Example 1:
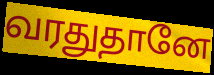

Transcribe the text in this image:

வரதுதானே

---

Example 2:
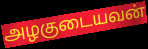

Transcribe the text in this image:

அழகுடையவன்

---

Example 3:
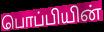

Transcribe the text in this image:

பொப்பியின்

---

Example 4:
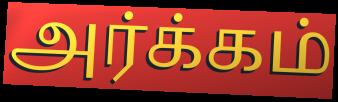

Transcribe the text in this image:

அர்க்கம்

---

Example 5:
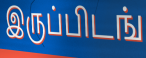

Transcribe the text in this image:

இருப்பிடங்